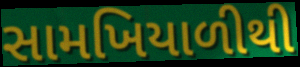
સામખિયાળીથી